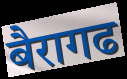
बैरागढ